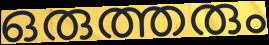
ഒരുത്തരും